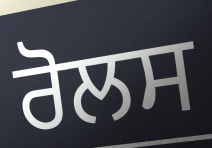
ਰੋਲਸ